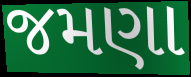
જમણા